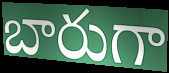
బారుగా